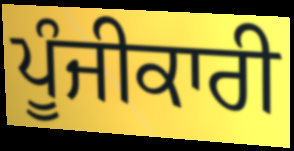
ਪੂੰਜੀਕਾਰੀ